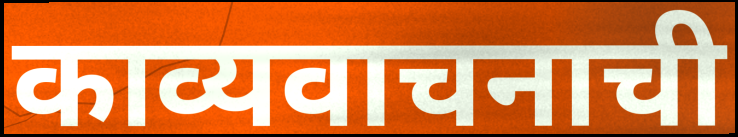
काव्यवाचनाची